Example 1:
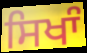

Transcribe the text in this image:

ਸਿਖਾੰ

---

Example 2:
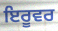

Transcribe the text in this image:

ਇਰੂਵਰ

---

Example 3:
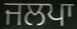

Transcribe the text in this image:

ਜਲਪਾ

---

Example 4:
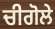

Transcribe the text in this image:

ਚੀਗੋਲੇ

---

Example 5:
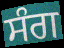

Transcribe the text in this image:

ਸੰਗ